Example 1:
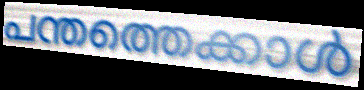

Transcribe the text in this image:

പന്തത്തെക്കാൾ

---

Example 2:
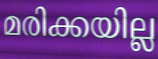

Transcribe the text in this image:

മരിക്കയില്ല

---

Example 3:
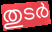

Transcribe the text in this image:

തുടർ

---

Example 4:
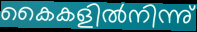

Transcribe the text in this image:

കൈകളിൽനിന്നു്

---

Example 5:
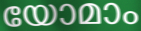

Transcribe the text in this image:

യോമാം